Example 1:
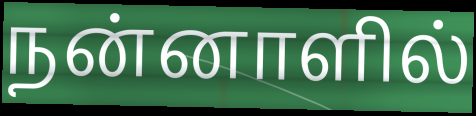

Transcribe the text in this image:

நன்னாளில்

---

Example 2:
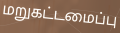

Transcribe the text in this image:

மறுகட்டமைப்பு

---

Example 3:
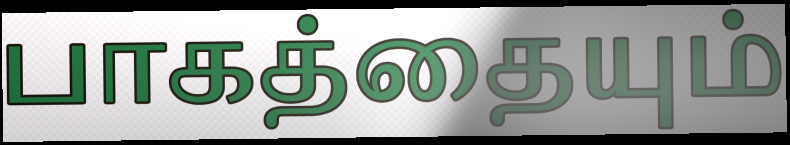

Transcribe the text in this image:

பாகத்தையும்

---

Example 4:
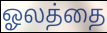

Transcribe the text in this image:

ஓலத்தை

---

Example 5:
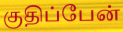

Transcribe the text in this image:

குதிப்பேன்